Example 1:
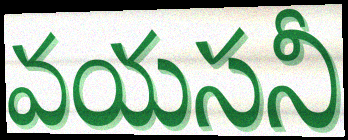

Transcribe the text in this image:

వయసనీ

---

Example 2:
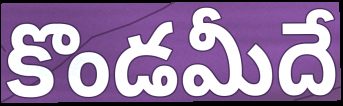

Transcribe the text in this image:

కొండమీదే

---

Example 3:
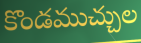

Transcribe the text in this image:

కొండముచ్చుల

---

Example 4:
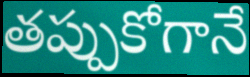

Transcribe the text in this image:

తప్పుకోగానే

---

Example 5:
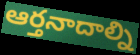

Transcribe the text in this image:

ఆర్తనాదాల్ని